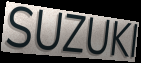
SUZUKI